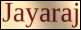
Jayaraj